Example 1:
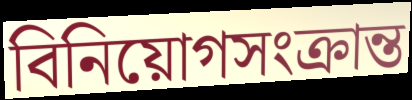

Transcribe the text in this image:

বিনিয়োগসংক্রান্ত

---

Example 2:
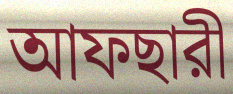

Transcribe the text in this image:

আফছারী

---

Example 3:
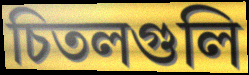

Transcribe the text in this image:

চিতলগুলি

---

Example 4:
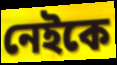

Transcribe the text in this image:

নেইকে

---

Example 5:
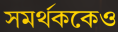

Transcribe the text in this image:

সমর্থককেও